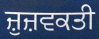
ਜ਼ੁਜ਼ਵਕਤੀ